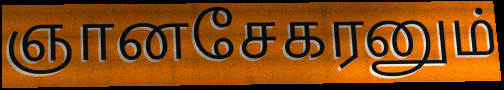
ஞானசேகரனும்